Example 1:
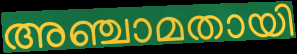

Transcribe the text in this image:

അഞ്ചാമതായി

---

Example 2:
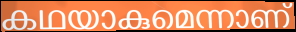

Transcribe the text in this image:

കഥയാകുമെന്നാണ്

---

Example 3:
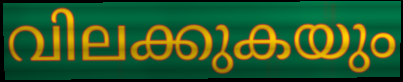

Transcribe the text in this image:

വിലക്കുകയും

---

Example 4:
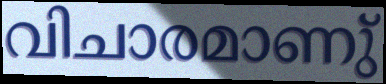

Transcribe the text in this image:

വിചാരമാണു്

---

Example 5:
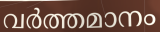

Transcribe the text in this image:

വർത്തമാനം